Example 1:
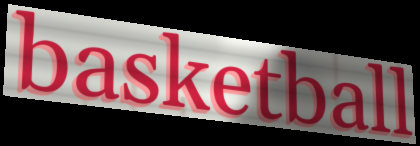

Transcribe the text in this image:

basketball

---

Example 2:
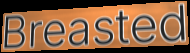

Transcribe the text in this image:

Breasted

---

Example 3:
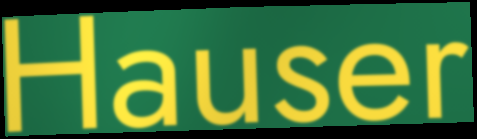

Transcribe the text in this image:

Hauser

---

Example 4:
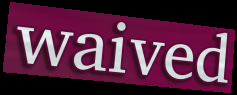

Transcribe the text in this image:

waived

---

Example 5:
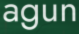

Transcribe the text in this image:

agun